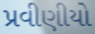
પ્રવીણીયો